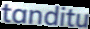
tanditu